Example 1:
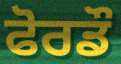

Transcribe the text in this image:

ਫੋਰਡੌ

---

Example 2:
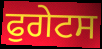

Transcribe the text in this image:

ਫੁਗੇਟਸ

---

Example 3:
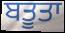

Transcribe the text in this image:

ਬਤੂਤਾ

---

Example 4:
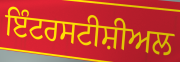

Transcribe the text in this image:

ਇੰਟਰਸਟੀਸ਼ੀਅਲ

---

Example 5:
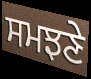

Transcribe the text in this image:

ਸਮਝਣੇ